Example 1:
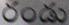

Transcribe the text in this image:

రండు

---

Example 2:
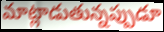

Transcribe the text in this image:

మాట్లాడుతున్నప్పుడూ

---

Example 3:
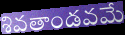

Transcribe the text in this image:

శివతాండవమే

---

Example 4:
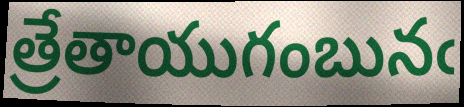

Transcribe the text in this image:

త్రేతాయుగంబునఁ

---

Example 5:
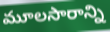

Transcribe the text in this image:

మూలసారాన్ని